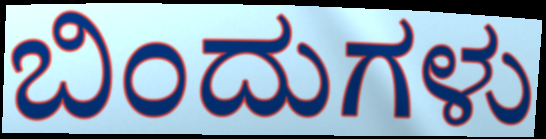
ಬಿಂದುಗಳು